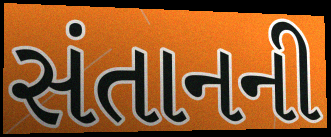
સંતાનની